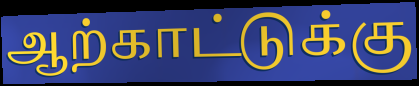
ஆற்காட்டுக்கு